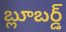
బ్లూబర్డ్